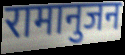
रामानुजन